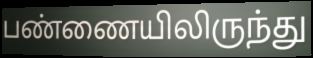
பண்ணையிலிருந்து